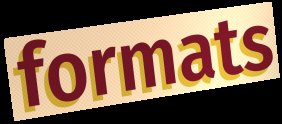
formats